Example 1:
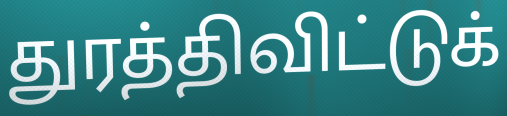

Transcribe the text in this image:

துரத்திவிட்டுக்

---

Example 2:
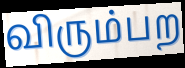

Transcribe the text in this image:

விரும்பற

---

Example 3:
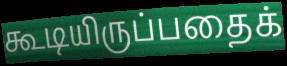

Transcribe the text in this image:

கூடியிருப்பதைக்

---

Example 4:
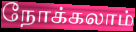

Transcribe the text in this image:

நோக்கலாம்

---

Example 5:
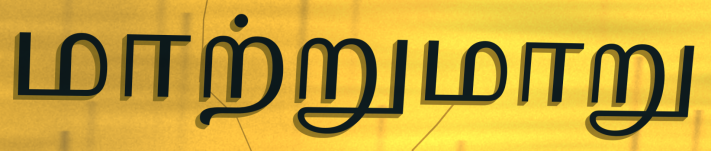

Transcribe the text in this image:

மாற்றுமாறு